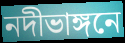
নদীভাঙ্গনে